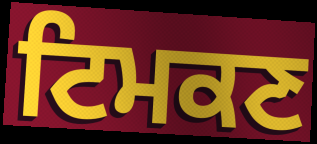
ਟਿਮਕਣ